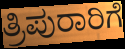
ತ್ರಿಪುರಾರಿಗೆ